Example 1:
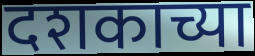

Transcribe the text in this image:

दशकाच्या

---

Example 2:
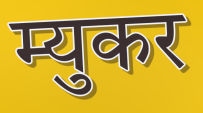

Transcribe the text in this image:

म्युकर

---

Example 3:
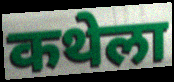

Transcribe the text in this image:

कथेला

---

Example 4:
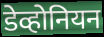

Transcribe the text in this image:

डेव्होनियन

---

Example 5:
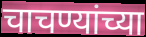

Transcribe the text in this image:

चाचण्यांच्या